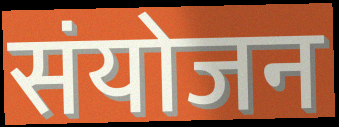
संयोजन